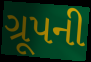
ગ્રૂપની